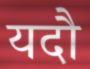
यदौ